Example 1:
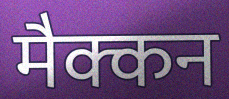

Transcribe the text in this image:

मैक्कन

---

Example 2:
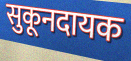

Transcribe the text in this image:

सुकूनदायक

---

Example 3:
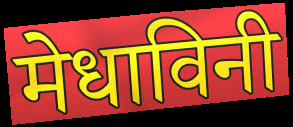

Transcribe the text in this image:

मेधाविनी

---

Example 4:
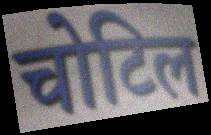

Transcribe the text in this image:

चोटिल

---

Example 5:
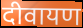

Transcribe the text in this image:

दीवायण